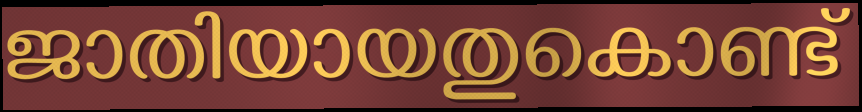
ജാതിയായതുകൊണ്ട്